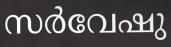
സർവേഷു